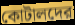
কোটালদের